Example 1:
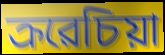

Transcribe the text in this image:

ক্ৰৱেচিয়া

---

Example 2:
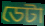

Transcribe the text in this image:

ডেটা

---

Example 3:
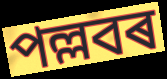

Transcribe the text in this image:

পল্লবৰ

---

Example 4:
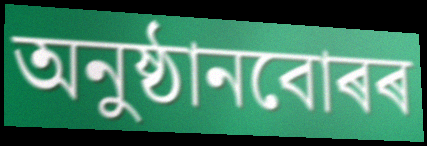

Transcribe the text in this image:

অনুষ্ঠানবোৰৰ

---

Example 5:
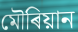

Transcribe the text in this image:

মৌৰিয়ান